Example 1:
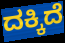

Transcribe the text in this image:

ದಕ್ಕಿದೆ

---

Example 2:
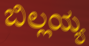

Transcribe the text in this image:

ಬಿಲ್ಲಯ್ಯ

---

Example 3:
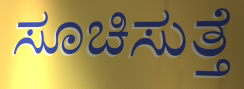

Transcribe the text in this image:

ಸೂಚಿಸುತ್ತೆ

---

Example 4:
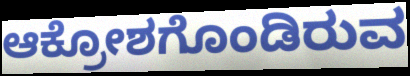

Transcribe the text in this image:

ಆಕ್ರೋಶಗೊಂಡಿರುವ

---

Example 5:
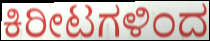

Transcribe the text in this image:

ಕಿರೀಟಗಳಿಂದ